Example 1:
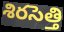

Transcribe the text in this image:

శిరసెత్తి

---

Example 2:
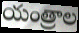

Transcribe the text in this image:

యంత్రాల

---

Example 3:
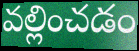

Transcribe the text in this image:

వల్లించడం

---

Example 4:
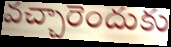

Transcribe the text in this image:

వచ్చారెందుకు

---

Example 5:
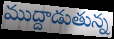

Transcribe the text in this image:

ముద్దాడుతున్న